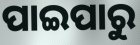
ପାଇପାରୁ